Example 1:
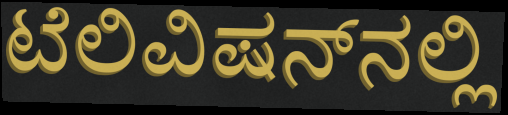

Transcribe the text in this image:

ಟೆಲಿವಿಷನ್‌ನಲ್ಲಿ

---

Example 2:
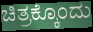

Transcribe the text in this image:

ಚಿತ್ರಕ್ಕೊಂದು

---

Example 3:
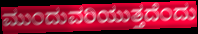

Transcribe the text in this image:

ಮುಂದುವರಿಯುತ್ತದೆಂದು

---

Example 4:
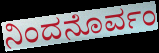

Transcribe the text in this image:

ನಿಂದನೊರ್ವಂ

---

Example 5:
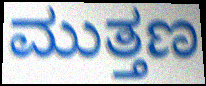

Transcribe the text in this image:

ಮುತ್ತಣ